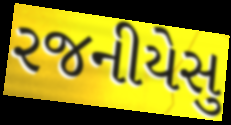
રજનીયેસુ